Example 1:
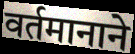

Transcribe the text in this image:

वर्तमानाने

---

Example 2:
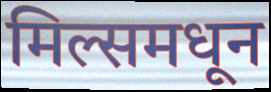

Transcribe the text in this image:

मिल्समधून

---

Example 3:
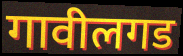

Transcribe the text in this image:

गावीलगड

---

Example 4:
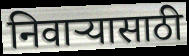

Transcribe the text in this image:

निवाऱ्यासाठी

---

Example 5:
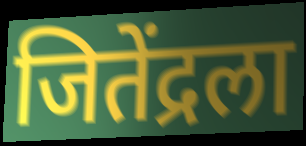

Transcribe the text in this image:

जितेंद्रला